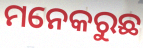
ମନେକରୁଛ